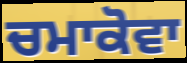
ਚਮਾਕੋਵਾ